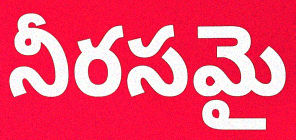
నీరసమై